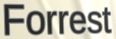
Forrest